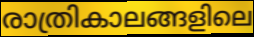
രാത്രികാലങ്ങളിലെ